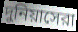
দুনিয়াসেরা